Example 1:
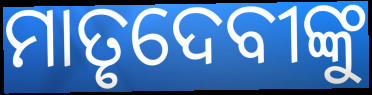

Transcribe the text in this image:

ମାତୃଦେବୀଙ୍କୁ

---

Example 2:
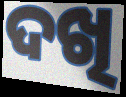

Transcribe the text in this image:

ଦଖି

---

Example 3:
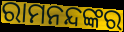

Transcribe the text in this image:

ରାମନନ୍ଦଙ୍କର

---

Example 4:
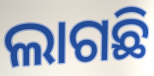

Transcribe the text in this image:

ଲାଗଛି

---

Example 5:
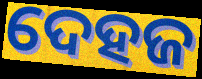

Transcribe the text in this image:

ଦେହଜ